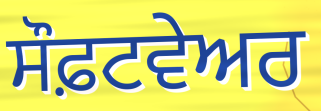
ਸੌਫ਼ਟਵੇਅਰ